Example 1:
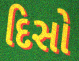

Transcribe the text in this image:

દિસો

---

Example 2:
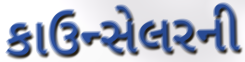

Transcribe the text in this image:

કાઉન્સેલરની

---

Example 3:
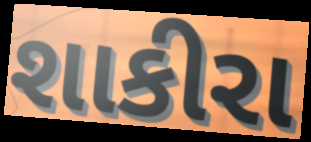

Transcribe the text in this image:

શાકીરા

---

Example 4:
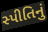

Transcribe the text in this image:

સ્પીતિનું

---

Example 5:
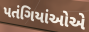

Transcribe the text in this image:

પતંગિયાંઓએ